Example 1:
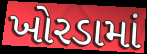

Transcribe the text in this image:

ખોરડામાં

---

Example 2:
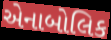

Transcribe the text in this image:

એનાબોલિક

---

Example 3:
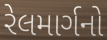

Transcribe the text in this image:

રેલમાર્ગનો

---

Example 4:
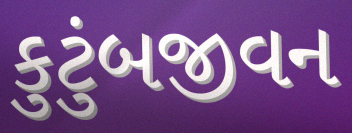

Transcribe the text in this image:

કુટુંબજીવન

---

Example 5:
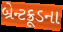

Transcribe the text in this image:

બ્રેન્ટક્રૂડના